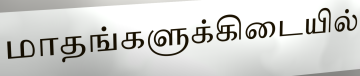
மாதங்களுக்கிடையில்